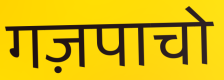
गज़पाचो